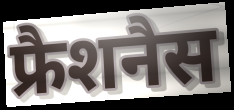
फ्रैशनैस